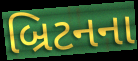
બ્રિટનના